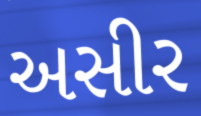
અસીર